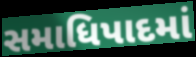
સમાધિપાદમાં